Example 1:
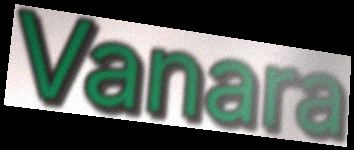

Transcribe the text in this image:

Vanara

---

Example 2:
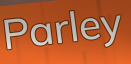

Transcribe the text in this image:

Parley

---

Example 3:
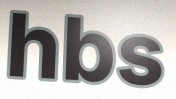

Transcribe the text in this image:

hbs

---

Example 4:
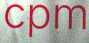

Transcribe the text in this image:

cpm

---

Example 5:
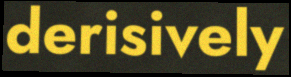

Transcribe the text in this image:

derisively